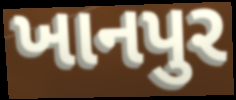
ખાનપુર